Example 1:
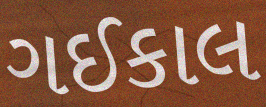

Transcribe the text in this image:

ગઈકાલ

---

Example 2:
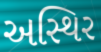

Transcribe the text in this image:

અસ્થિર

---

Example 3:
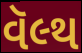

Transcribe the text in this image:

વૅલ્થ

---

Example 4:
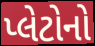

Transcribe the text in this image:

પ્લેટોનો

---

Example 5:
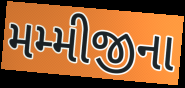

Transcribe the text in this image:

મમ્મીજીના